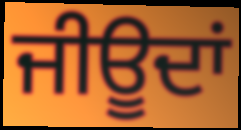
ਜੀਊਦਾਂ